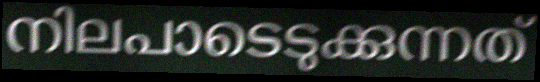
നിലപാടെടുക്കുന്നത്